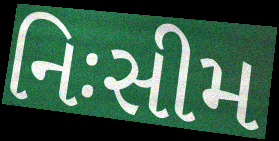
નિઃસીમ